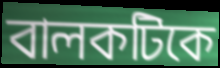
বালকটিকে